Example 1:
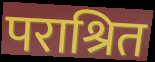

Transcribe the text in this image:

पराश्रित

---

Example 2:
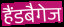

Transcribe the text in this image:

हैंडबैगेज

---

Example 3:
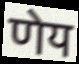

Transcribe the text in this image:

णेय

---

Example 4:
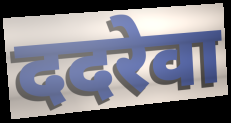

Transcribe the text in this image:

ददरेवा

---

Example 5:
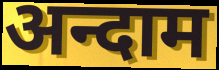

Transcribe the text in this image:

अन्दाम